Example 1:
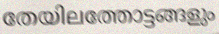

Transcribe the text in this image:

തേയിലത്തോട്ടങ്ങളും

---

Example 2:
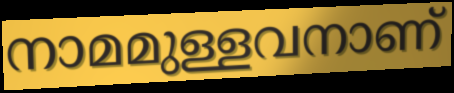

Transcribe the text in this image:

നാമമുള്ളവനാണ്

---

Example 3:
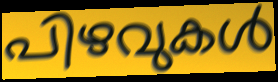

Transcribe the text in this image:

പിഴവുകൾ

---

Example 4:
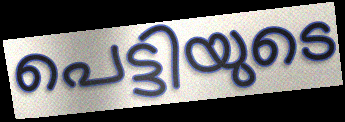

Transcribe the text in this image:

പെട്ടിയുടെ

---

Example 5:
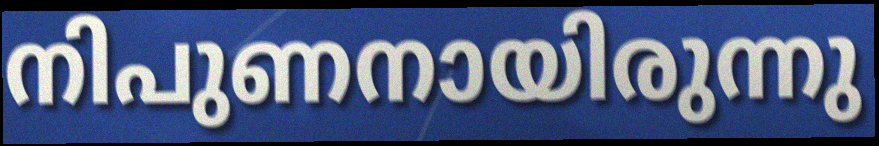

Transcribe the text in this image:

നിപുണനായിരുന്നു